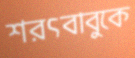
শরৎবাবুকে